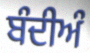
ਬੰਦੀਅੰ